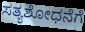
ಸತ್ಯಶೋಧನೆಗೆ